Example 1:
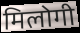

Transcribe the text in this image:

मिलोगी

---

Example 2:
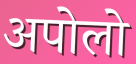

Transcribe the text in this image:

अपोलो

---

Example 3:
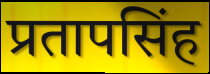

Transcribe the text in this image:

प्रतापसिंह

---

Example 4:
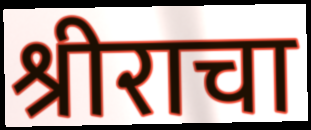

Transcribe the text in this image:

श्रीराचा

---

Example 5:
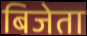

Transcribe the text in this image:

बिजेता